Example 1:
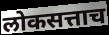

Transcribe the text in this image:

लोकसत्ताच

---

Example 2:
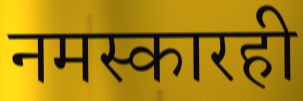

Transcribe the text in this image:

नमस्कारही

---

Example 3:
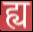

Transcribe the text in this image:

ह्य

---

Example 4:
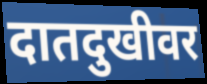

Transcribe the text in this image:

दातदुखीवर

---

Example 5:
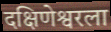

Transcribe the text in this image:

दक्षिणेश्वरला